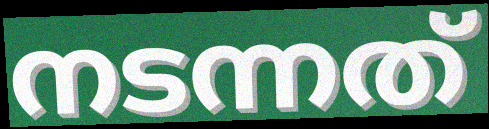
നടന്നത്